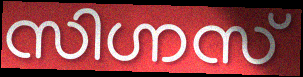
സിഗ്നസ്